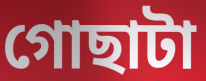
গোছাটা